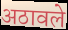
अठावले